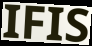
IFIS